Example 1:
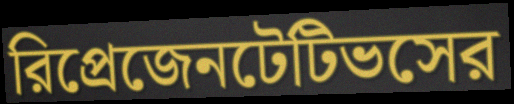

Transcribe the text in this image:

রিপ্রেজেনটেটিভসের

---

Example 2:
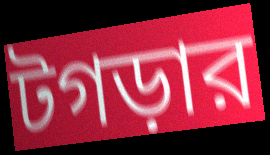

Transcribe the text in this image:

টগড়ার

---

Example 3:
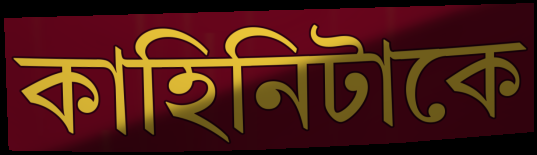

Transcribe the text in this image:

কাহিনিটাকে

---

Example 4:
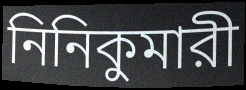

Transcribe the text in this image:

নিনিকুমারী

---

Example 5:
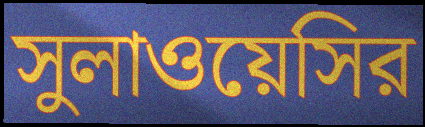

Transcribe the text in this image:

সুলাওয়েসির